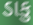
ડાકુ